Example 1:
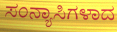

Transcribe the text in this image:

ಸಂನ್ಯಾಸಿಗಳಾದ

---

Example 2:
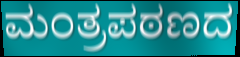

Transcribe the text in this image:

ಮಂತ್ರಪಠಣದ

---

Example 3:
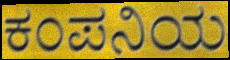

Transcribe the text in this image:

ಕಂಪನಿಯ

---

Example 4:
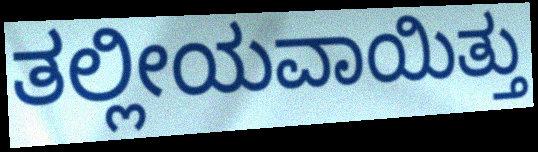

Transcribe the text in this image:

ತಲ್ಲೀಯವಾಯಿತ್ತು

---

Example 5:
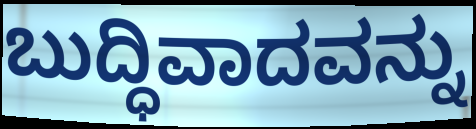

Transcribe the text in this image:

ಬುದ್ಧಿವಾದವನ್ನು